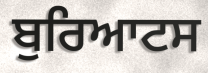
ਬੁਰਿਆਟਸ